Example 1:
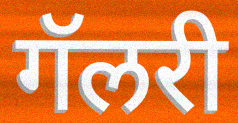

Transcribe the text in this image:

गॅलरी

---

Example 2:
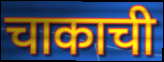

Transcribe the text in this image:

चाकाची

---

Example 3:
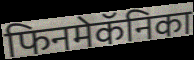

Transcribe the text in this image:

फिनमेकॅनिका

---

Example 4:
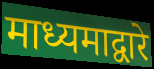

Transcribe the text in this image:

माध्यमाद्वारे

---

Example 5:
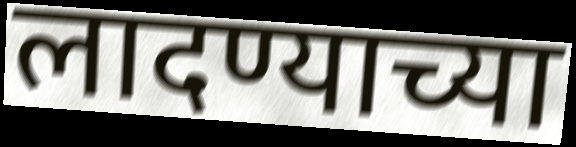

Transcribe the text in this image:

लादण्याच्या